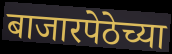
बाजारपेठेच्या